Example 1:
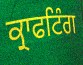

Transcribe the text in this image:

ਕ੍ਰਾਫਟਿੰਗ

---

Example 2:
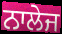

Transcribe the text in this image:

ਨਾਲੇਜ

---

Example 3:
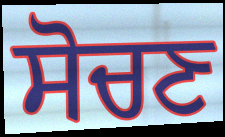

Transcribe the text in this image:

ਸੋਚਣ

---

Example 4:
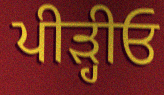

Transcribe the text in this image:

ਪੀੜ੍ਹੀਓ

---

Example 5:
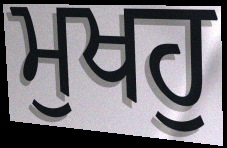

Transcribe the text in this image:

ਮੁਖਹੁ